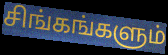
சிங்கங்களும்